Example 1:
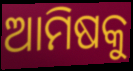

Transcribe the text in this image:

ଆମିଷକୁ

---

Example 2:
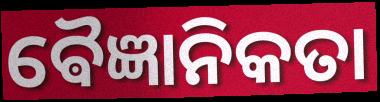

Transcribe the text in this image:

ଵୈଜ୍ଞାନିକତା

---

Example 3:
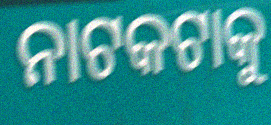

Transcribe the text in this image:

ନାଟକଟାକୁ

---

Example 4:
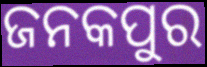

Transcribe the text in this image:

ଜନକପୁର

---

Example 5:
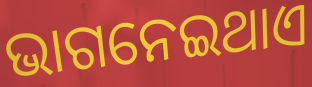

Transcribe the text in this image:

ଭାଗନେଇଥାଏ